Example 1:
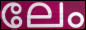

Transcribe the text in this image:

ലേം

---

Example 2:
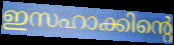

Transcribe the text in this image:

ഇസഹാക്കിന്റെ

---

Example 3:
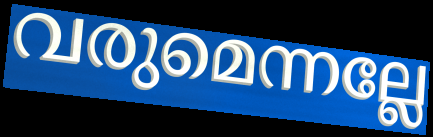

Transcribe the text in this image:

വരുമെന്നല്ലേ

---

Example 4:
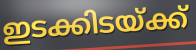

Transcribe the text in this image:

ഇടക്കിടയ്ക്ക്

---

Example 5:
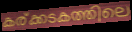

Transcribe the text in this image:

കര്ക്കടകത്തിലെ